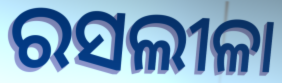
ରସଲୀଳା